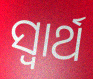
ସ୍ୱାର୍ଥ